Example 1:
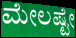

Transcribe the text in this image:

ಮೇಲಷ್ಟೇ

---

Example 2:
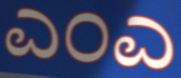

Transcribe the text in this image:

ಎಂಎ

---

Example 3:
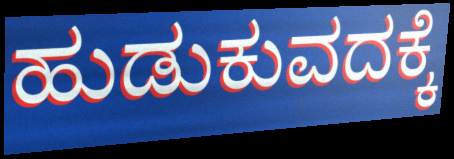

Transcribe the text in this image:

ಹುಡುಕುವದಕ್ಕೆ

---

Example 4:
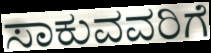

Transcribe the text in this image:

ಸಾಕುವವರಿಗೆ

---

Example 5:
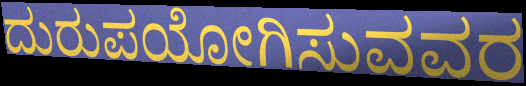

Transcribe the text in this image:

ದುರುಪಯೋಗಿಸುವವರ